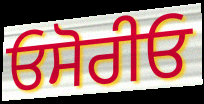
ਓਸੋਰੀਓ